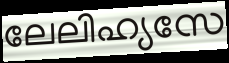
ലേലിഹ്യസേ